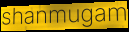
shanmugam